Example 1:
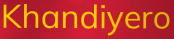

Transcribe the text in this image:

Khandiyero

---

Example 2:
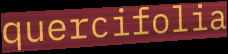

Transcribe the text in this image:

quercifolia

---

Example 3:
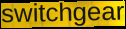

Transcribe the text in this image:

switchgear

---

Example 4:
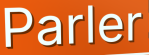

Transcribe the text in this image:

Parler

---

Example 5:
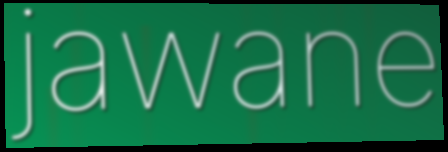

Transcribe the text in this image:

jawane